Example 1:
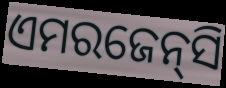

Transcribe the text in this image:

ଏମରଜେନ୍‌ସି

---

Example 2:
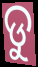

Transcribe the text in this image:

ଡୁ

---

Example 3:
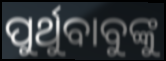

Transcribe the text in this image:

ପୁର୍ଥୁବାବୁଙ୍କୁ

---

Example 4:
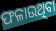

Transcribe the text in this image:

ଫଳାଉଥିବା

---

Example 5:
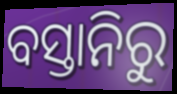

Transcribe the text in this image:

ବସ୍ତାନିରୁ